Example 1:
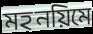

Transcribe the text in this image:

মহনয়িমে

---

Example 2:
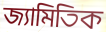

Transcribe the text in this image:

জ্যামিতিক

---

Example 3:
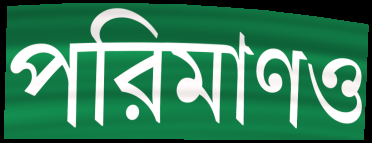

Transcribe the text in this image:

পরিমাণও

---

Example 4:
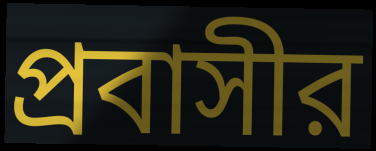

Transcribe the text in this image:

প্রবাসীর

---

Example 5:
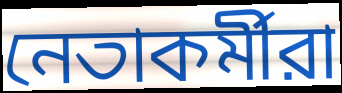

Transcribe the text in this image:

নেতাকর্মীরা